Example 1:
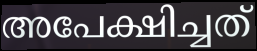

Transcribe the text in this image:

അപേക്ഷിച്ചത്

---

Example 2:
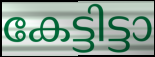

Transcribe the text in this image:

കേട്ടിട്ടാ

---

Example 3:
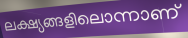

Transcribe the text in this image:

ലക്ഷ്യങ്ങളിലൊന്നാണ്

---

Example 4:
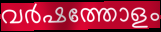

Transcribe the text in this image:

വർഷത്തോളം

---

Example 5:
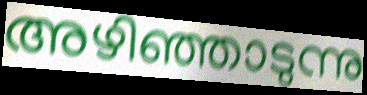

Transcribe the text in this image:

അഴിഞ്ഞാടുന്നു